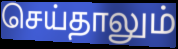
செய்தாலும்